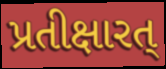
પ્રતીક્ષારત્